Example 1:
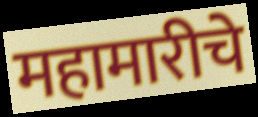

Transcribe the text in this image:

महामारीचे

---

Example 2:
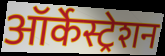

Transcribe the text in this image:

ऑर्केस्ट्रेशन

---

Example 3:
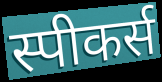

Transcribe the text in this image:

स्पीकर्स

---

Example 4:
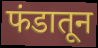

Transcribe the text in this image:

फंडातून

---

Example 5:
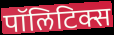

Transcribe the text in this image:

पॉलिटिक्स